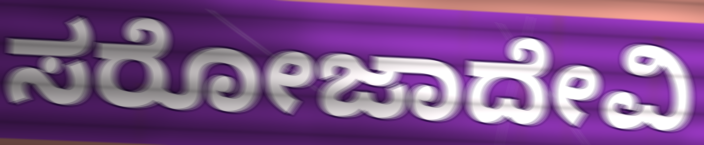
ಸರೋಜಾದೇವಿ